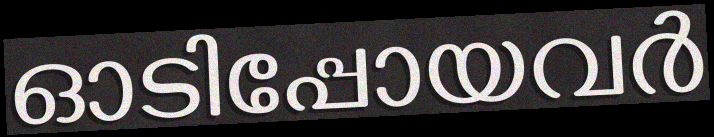
ഓടിപ്പോയവർ